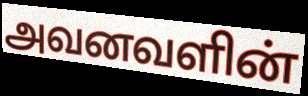
அவனவளின்